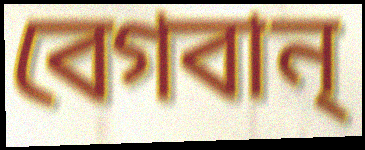
বেগবান্